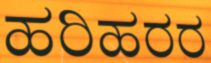
ಹರಿಹರರ